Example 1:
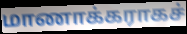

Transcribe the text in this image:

மாணாக்கராகச்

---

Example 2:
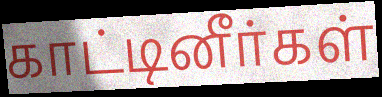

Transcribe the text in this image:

காட்டினீர்கள்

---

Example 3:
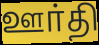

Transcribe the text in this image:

ஊர்தி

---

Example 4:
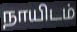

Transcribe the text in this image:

நாயிடம்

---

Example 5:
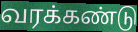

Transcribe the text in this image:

வரக்கண்டு